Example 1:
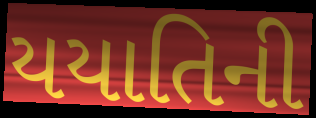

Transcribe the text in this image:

યયાતિની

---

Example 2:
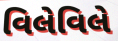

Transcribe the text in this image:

વિલેવિલે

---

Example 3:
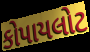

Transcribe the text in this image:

કોપાયલોટ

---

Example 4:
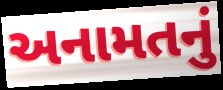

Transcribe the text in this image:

અનામતનું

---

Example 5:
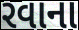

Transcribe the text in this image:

રવાના